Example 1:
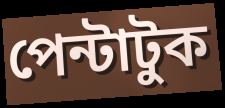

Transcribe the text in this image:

পেন্টাটুক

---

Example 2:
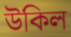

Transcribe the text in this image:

উকিল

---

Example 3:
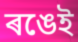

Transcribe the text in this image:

ৰঙেই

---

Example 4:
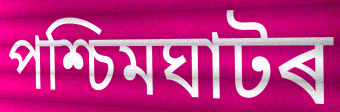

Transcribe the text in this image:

পশ্চিমঘাটৰ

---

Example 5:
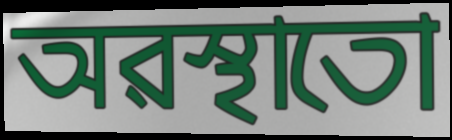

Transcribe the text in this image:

অৱস্থাতো